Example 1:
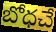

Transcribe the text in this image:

బోధచే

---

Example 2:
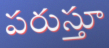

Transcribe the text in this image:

పరుస్తూ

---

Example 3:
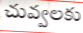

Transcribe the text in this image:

చువ్వలకు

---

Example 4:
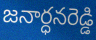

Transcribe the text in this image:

జనార్ధనరెడ్డి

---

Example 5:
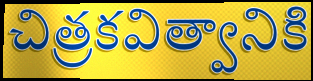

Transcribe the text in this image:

చిత్రకవిత్వానికి